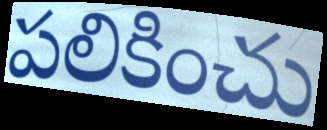
పలికించు